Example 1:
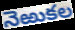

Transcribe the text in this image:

నెఱుకల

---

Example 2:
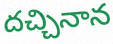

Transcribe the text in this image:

దచ్చినాన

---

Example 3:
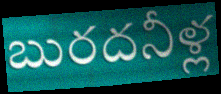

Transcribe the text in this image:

బురదనీళ్ల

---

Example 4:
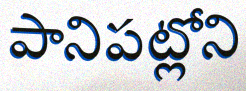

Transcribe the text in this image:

పానిపట్లోని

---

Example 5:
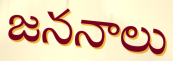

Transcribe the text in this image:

జననాలు